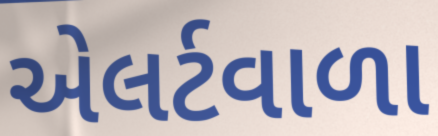
એલર્ટવાળા